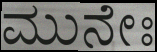
ಮುನೇಃ